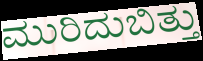
ಮುರಿದುಬಿತ್ತು